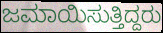
ಜಮಾಯಿಸುತ್ತಿದ್ದರು